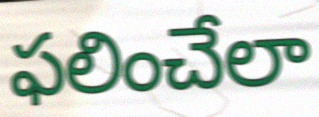
ఫలించేలా